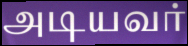
அடியவர்